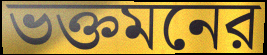
ভক্তমনের